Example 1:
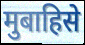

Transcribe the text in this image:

मुबाहिसे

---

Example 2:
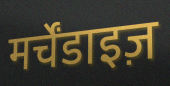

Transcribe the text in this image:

मर्चेंडाइज़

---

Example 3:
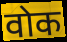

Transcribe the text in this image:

वोक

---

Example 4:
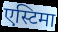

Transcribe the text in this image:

एस्टिमा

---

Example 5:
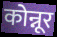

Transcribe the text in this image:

कोन्नूर